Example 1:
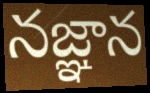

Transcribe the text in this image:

నజ్ఞాన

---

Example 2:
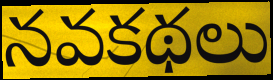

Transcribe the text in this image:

నవకథలు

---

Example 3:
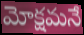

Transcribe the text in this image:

మోక్షమనే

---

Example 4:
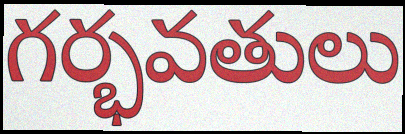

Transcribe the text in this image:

గర్భవతులు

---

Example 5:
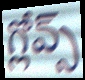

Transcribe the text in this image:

గ్లోవ్స్